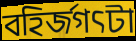
বহির্জগৎটা